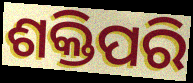
ଶକ୍ତିପରି